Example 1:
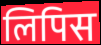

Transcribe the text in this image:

लिपिस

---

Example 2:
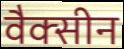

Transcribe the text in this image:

वैक्‍सीन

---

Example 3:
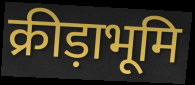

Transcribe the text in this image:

क्रीड़ाभूमि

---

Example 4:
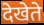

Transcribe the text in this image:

देखेते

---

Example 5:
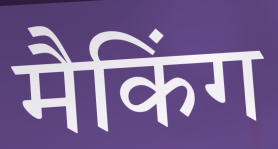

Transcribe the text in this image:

मैकिंग